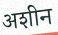
अशीन